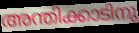
അന്തിക്കാടിനു